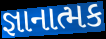
જ્ઞાનાત્મક